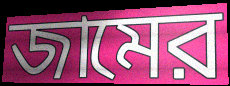
জামের